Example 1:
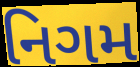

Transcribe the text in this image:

નિગમ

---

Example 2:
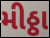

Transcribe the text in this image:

મીઠ્ઠા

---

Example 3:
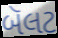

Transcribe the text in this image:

બૅલટ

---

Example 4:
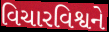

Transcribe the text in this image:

વિચારવિશ્વને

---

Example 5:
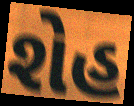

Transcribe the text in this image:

શેહ